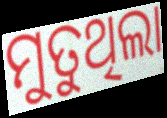
ମୁତୁଥିଲା